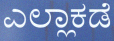
ಎಲ್ಲಾಕಡೆ